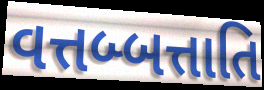
વત્તબ્બત્તાતિ